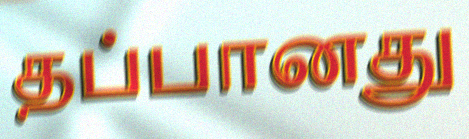
தப்பானது